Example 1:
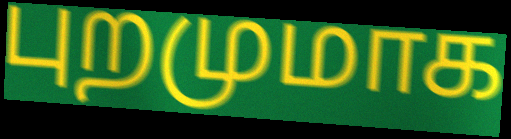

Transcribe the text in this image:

புறமுமாக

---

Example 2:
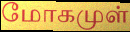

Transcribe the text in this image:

மோகமுள்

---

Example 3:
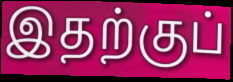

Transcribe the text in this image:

இதற்குப்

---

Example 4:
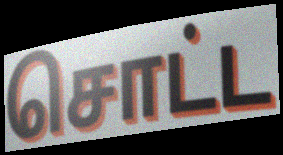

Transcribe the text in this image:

சொட்ட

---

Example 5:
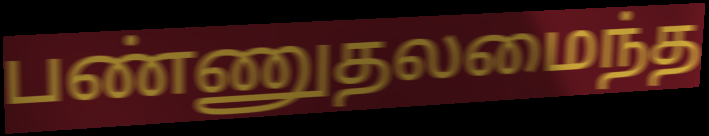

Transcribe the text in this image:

பண்ணுதலமைந்த